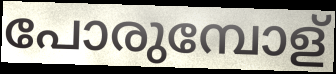
പോരുമ്പോള്